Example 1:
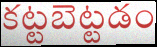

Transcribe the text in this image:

కట్టబెట్టడం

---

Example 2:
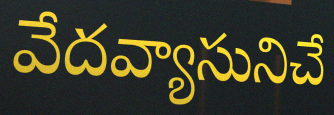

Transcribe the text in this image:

వేదవ్యాసునిచే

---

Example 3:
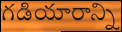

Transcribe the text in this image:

గడియారాన్ని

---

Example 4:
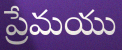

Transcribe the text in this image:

ప్రేమయు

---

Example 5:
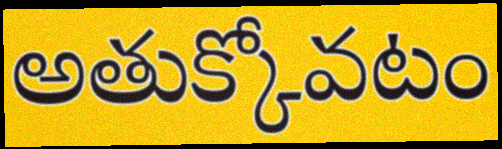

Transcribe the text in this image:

అతుక్కోవటం